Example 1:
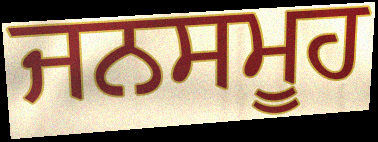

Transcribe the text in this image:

ਜਨਸਮੂਹ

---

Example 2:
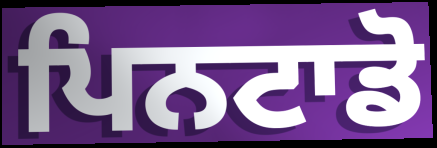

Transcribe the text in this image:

ਪਿਨਟਾਡੋ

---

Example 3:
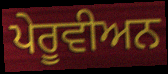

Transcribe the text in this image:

ਪੇਰੂਵੀਅਨ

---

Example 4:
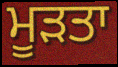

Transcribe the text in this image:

ਮੂੜਤਾ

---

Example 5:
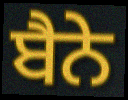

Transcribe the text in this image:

ਬੈਨੇ